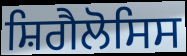
ਸ਼ਿਗੈਲੋਸਿਸ